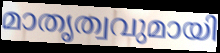
മാതൃത്വവുമായി